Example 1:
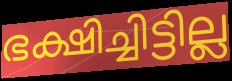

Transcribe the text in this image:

ഭക്ഷിച്ചിട്ടില്ല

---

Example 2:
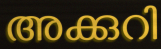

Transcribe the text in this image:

അക്കുറി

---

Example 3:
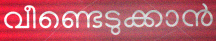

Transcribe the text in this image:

വീണ്ടെടുക്കാൻ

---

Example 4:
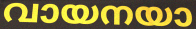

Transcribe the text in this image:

വായനയാ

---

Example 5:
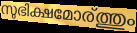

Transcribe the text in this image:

സുഭിക്ഷമോര്ത്തും